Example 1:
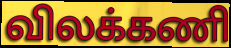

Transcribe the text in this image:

விலக்கணி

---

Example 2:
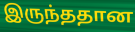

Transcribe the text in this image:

இருந்ததான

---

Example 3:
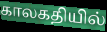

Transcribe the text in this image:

காலகதியில்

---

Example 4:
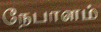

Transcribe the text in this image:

நேபாளம்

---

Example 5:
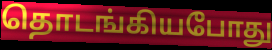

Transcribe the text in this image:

தொடங்கியபோது